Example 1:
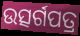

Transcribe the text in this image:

ଉତ୍ସର୍ଗପତ୍ର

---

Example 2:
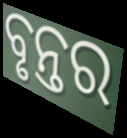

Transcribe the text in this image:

ବୃନ୍ତର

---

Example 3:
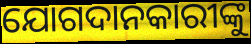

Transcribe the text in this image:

ଯୋଗଦାନକାରୀଙ୍କୁ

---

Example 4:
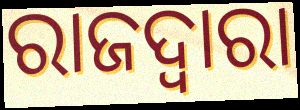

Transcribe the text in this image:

ରାଜଦ୍ୱାରା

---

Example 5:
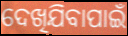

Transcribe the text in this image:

ଦେଖିଯିବାପାଇଁ